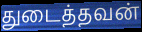
துடைத்தவன்